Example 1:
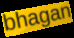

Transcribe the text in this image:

bhagan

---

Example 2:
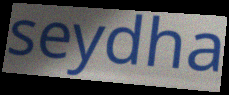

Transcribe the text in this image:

seydha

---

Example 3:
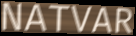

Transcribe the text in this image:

NATVAR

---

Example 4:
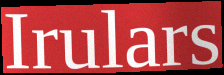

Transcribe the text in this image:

Irulars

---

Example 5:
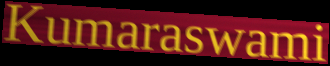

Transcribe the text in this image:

Kumaraswami